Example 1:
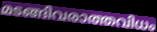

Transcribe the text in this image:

മടങ്ങിവരാത്തവിധം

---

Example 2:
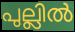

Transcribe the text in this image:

പുല്ലിൽ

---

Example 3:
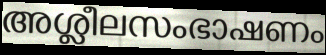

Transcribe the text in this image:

അശ്ലീലസംഭാഷണം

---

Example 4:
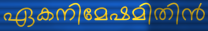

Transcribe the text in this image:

ഏകനിമേഷമിതിൻ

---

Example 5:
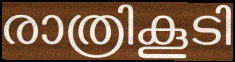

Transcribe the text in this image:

രാത്രികൂടി